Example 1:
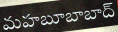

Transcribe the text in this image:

మహబూబాబాద్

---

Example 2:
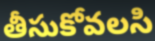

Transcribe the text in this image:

తీసుకోవలసి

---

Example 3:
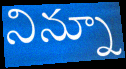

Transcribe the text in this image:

నిన్నూ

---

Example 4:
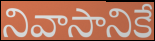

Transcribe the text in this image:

నివాసానికే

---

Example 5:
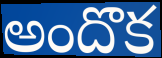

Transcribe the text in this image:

అందొక